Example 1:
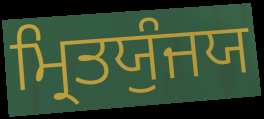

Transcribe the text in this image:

ਮ੍ਰਿਤਯੁੰਜਯ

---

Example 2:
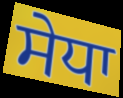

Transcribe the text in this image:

ਸੇਧਾ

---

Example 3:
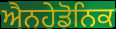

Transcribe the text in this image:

ਐਨਹੇਡੋਨਿਕ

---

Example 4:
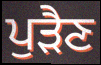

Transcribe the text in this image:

ਪੁੜੈਣ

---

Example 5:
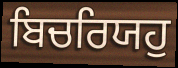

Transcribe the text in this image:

ਬਿਚਰਿਯਹੁ